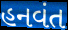
હનવંત